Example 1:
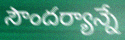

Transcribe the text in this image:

సౌందర్యాన్నే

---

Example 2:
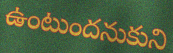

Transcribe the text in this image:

ఉంటుందనుకుని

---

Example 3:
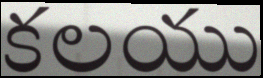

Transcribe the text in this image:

కలయు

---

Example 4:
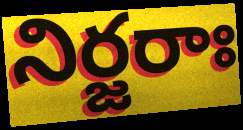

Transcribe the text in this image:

నిర్జరాః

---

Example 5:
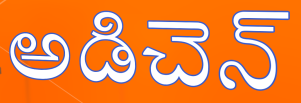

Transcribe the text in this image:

అడిచెన్